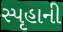
સ્પૃહાની